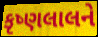
કૃષ્ણલાલને